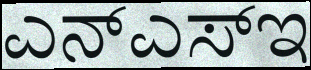
ಎನ್ಎಸ್ಇ